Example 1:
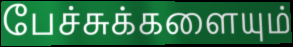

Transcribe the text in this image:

பேச்சுக்களையும்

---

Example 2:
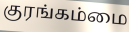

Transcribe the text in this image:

குரங்கம்மை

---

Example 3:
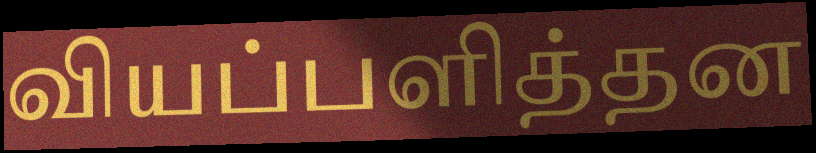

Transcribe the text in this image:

வியப்பளித்தன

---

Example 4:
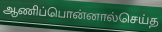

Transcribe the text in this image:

ஆணிப்பொன்னால்செய்த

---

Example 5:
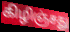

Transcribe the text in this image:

கிழிஞ்சது